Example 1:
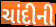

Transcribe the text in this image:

ચાંદીની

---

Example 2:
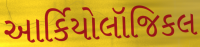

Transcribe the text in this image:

આર્કિયોલૉજિકલ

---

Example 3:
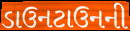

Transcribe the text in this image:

ડાઉનટાઉનની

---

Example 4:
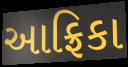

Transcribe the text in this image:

આફ્રિકા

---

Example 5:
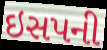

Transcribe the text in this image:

ઇસપની